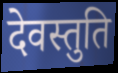
देवस्तुति